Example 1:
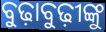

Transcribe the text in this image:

ବୁଢ଼ାବୁଢ଼ୀଙ୍କୁ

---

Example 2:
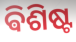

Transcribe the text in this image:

ଵିଶିଷ୍ଟ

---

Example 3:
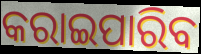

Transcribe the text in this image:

କରାଇପାରିବ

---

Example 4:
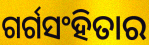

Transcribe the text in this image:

ଗର୍ଗସଂହିତାର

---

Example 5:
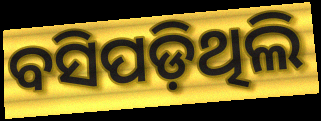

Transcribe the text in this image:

ବସିପଡ଼ିଥିଲି